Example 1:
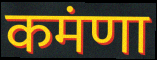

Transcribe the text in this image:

कमंणा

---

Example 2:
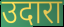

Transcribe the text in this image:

उदारा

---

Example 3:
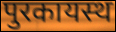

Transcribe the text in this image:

पुरकायस्थ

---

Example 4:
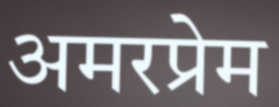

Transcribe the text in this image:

अमरप्रेम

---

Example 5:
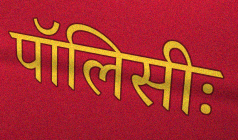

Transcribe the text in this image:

पॉलिसीः